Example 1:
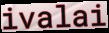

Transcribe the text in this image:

ivalai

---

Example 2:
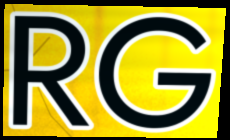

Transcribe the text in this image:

RG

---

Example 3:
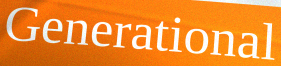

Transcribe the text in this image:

Generational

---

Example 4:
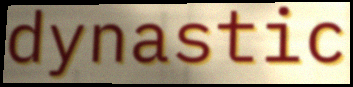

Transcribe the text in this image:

dynastic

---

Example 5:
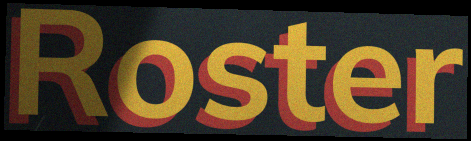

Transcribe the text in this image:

Roster